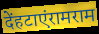
देंहटाएंरामराम